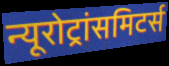
न्यूरोट्रांसमिटर्स